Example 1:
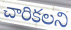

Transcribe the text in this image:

చారికలని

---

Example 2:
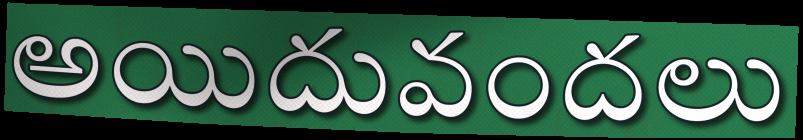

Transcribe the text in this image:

అయిదువందలు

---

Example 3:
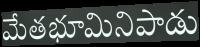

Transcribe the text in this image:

మేతభూమినిపాడు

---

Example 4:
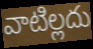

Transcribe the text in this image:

వాటిల్లదు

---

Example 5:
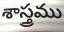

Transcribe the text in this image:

శాస్త్రము